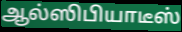
ஆல்ஸிபியாடீஸ்